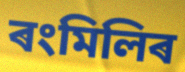
ৰংমিলিৰ